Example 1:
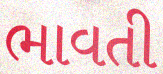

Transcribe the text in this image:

ભાવતી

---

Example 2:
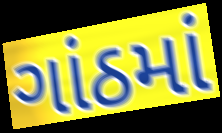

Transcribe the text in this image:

ગાંઠમાં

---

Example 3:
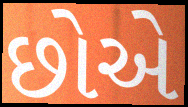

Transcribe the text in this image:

છોએ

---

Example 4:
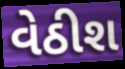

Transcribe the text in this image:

વેઠીશ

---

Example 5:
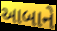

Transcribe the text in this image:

આબાને